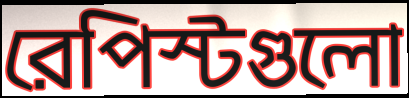
রেপিস্টগুলো